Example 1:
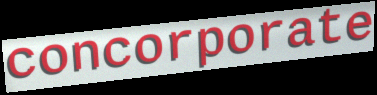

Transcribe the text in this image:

concorporate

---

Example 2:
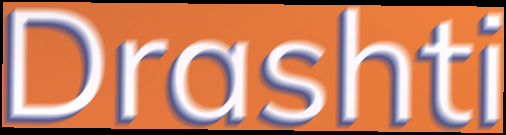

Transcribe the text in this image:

Drashti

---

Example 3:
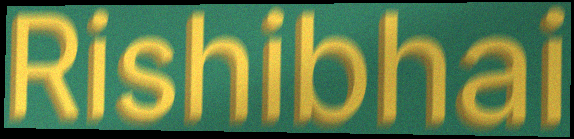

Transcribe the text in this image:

Rishibhai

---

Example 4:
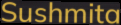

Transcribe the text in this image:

Sushmita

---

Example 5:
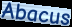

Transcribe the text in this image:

Abacus